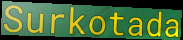
Surkotada